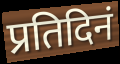
प्रतिदिनं